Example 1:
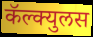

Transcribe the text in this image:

कॅल्क्युलस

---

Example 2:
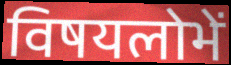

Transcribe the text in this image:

विषयलोभें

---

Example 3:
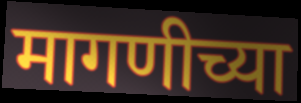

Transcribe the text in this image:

मागणीच्या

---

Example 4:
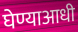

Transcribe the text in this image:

घेण्याआधी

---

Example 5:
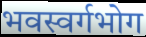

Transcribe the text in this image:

भवस्वर्गभोग